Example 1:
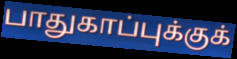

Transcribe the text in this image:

பாதுகாப்புக்குக்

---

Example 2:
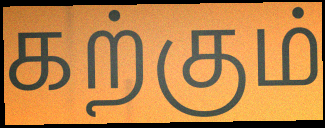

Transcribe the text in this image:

கற்கும்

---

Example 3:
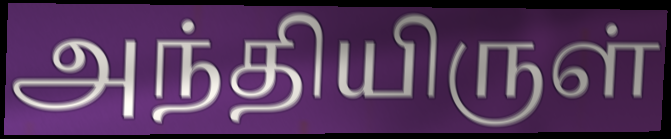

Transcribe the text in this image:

அந்தியிருள்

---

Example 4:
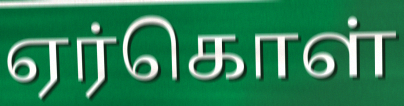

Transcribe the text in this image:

ஏர்கொள்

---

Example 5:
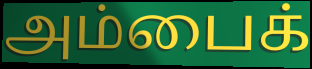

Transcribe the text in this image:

அம்பைக்